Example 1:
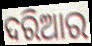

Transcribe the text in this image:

ଦରିଆର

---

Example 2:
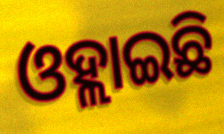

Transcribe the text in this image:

ଓହ୍ଲାଇଛି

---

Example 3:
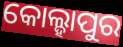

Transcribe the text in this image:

କୋଲ୍ହାପୁର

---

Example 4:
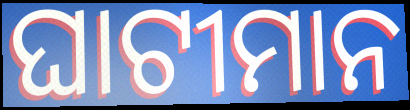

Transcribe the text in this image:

ଘାଟୀମାନ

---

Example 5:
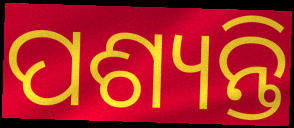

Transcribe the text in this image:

ପଶ୍ୟନ୍ତି